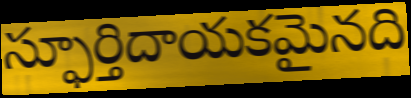
స్ఫూర్తిదాయకమైనది